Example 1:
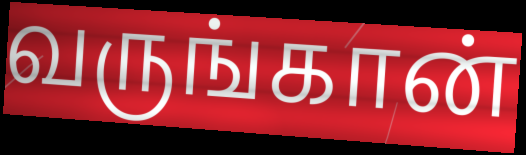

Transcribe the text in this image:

வருங்கான்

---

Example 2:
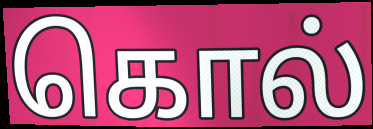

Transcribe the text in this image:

கொல்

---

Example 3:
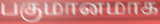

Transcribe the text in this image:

பகுமானமாக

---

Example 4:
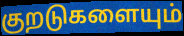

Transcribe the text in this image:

குறடுகளையும்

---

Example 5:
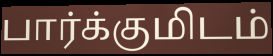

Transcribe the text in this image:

பார்க்குமிடம்